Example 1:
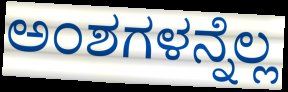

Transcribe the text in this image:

ಅಂಶಗಳನ್ನೆಲ್ಲ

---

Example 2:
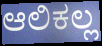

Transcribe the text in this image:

ಆಲಿಕಲ್ಲ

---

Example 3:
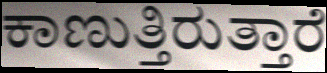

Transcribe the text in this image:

ಕಾಣುತ್ತಿರುತ್ತಾರೆ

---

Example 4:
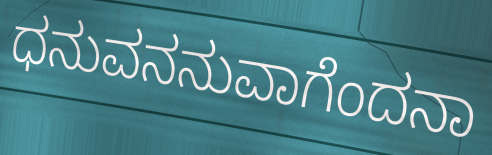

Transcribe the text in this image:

ಧನುವನನುವಾಗೆಂದನಾ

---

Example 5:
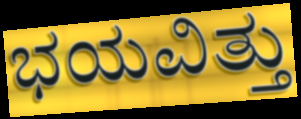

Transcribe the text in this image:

ಭಯವಿತ್ತು